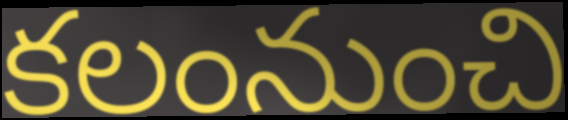
కలంనుంచి